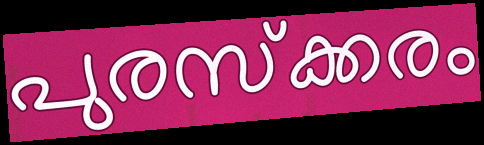
പുരസ്ക്കരം